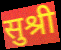
सुश्री